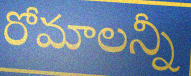
రోమాలన్నీ